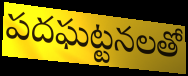
పదఘట్టనలతో